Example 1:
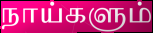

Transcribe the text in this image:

நாய்களும்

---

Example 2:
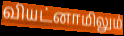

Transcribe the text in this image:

வியட்னாமிலும்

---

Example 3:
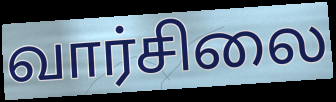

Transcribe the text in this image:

வார்சிலை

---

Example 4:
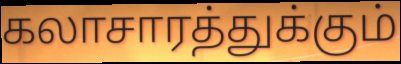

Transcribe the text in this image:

கலாசாரத்துக்கும்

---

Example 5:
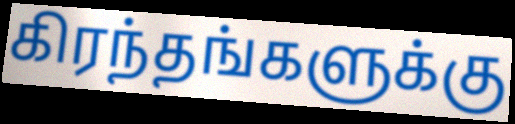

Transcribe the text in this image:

கிரந்தங்களுக்கு